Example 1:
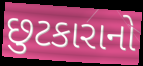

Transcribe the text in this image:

છુટકારાનો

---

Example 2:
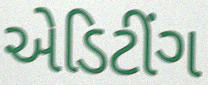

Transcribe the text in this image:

એડિટીંગ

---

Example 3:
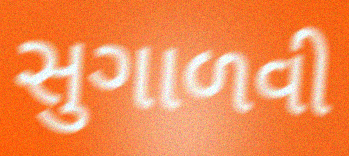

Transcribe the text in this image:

સુગાળવી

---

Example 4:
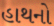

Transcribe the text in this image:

હાથનો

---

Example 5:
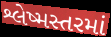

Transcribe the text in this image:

શ્લેષ્મસ્તરમાં